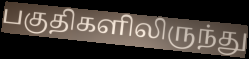
பகுதிகளிலிருந்து